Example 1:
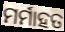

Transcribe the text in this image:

ମର୍ମାହତ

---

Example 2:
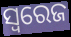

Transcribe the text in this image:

ସ୍ବରେଜ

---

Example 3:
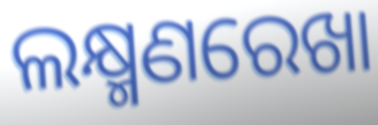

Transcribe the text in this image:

ଲକ୍ଷ୍ମଣରେଖା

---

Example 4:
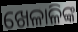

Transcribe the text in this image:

ଖେଳାଳିଙ୍କ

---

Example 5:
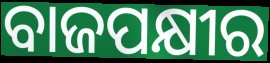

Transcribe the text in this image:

ବାଜପକ୍ଷୀର